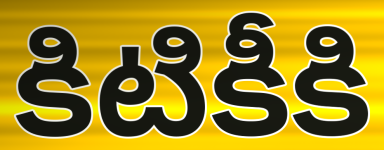
కిటికీకి